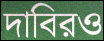
দাবিরও